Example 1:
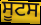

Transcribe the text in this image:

ਸੂਟਸ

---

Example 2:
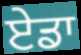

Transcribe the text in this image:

ਏਡਾ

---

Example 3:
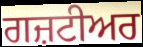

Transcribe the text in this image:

ਗਜ਼ਟੀਅਰ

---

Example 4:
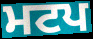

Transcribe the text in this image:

ਮਟਪ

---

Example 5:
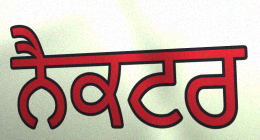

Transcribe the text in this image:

ਨੈਕਟਰ